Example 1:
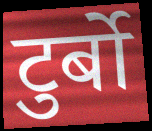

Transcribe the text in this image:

टुर्बो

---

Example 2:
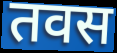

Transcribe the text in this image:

तवस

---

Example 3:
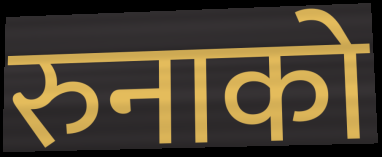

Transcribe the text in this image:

रुनाको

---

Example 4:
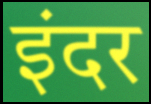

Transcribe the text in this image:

इंदर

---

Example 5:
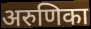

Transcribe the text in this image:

अरुणिका